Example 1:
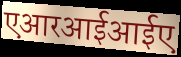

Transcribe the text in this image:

एआरआईआईए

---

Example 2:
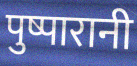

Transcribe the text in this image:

पुष्पारानी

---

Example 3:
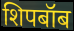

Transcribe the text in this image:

शिपबॉब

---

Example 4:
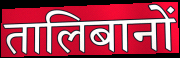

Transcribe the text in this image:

तालिबानों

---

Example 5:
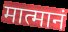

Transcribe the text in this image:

मात्मानं